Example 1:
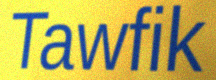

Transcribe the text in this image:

Tawfik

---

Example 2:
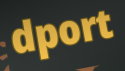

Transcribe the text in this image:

dport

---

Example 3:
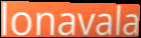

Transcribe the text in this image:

lonavala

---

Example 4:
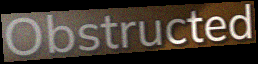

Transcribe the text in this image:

Obstructed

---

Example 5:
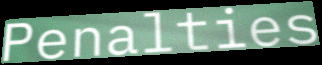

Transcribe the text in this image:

Penalties